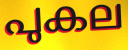
പുകല